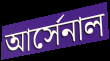
আর্সেনাল